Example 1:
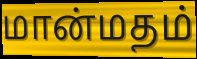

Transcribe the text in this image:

மான்மதம்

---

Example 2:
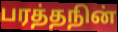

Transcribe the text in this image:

பரத்தநின்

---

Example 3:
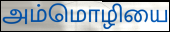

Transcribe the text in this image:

அம்மொழியை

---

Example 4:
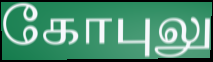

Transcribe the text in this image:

கோபுலு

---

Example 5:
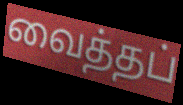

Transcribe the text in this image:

வைத்தப்